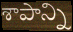
శాపాన్ని